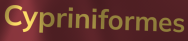
Cypriniformes